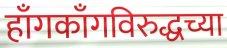
हाँगकाँगविरुद्धच्या